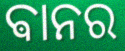
ଵାନର